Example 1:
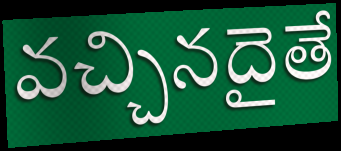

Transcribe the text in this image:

వచ్చినదైతే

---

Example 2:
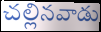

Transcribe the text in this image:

చల్లినవాడు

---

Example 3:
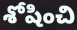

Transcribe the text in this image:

శోషించి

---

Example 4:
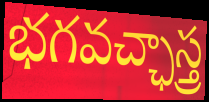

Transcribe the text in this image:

భగవచ్ఛాస్త్ర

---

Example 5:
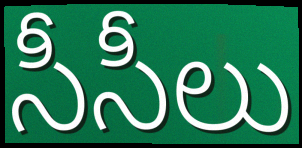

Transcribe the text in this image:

సీసీలు